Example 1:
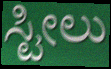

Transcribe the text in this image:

ಸ್ಟೀಲು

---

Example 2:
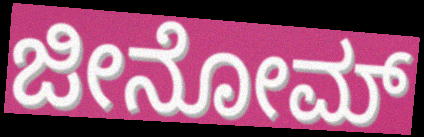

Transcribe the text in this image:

ಜೀನೋಮ್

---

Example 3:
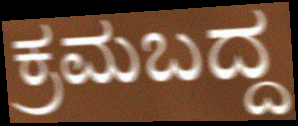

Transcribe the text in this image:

ಕ್ರಮಬದ್ದ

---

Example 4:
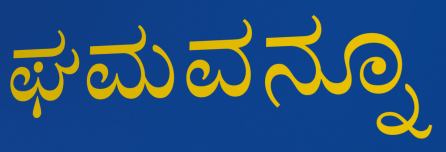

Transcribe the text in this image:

ಘಮವನ್ನೂ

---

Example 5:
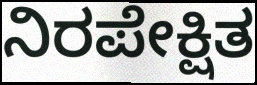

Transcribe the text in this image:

ನಿರಪೇಕ್ಷಿತ